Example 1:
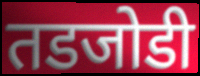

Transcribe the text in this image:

तडजोडी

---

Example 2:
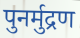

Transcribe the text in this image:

पुनर्मुद्रण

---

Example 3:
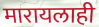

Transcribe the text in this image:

मारायलाही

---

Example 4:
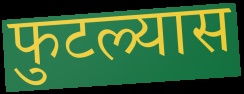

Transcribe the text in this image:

फुटल्यास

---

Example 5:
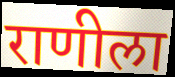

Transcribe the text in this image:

राणीला